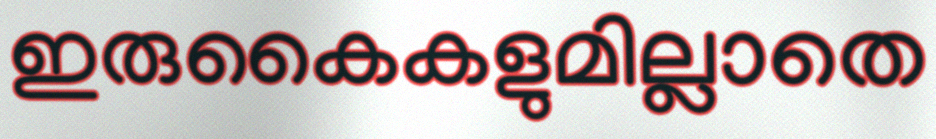
ഇരുകൈകളുമില്ലാതെ